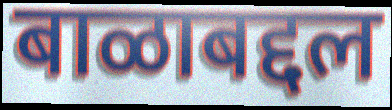
बाळाबद्दल